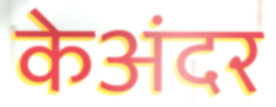
केअंदर